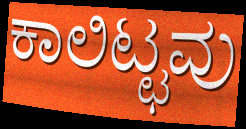
ಕಾಲಿಟ್ಟವು